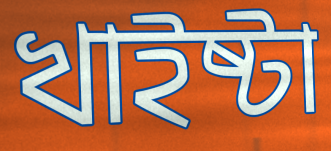
খাইষ্টা